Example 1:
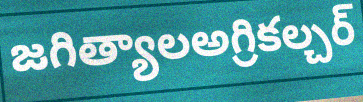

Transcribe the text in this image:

జగిత్యాలఅగ్రికల్చర్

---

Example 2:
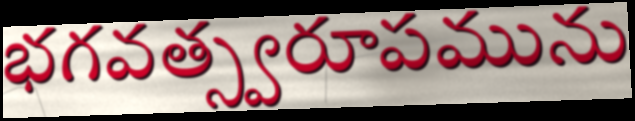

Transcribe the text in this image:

భగవత్స్వరూపమును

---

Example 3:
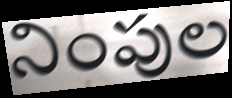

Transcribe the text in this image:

నింపుల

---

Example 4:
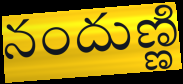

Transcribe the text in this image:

నందుణ్ణి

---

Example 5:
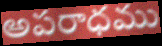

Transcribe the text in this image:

అపరాధము